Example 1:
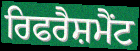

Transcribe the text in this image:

ਰਿਫਰੈਸ਼ਮੈਂਟ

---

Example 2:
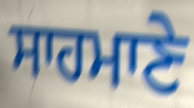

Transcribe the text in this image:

ਸਾਹਮਾਣੇ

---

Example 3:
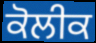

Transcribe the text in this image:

ਕੋਲੀਕ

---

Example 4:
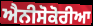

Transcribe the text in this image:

ਐਨੀਸੋਕੋਰੀਆ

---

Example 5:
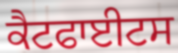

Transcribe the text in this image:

ਕੈਟਫਾਈਟਸ